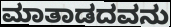
ಮಾತಾಡದವನು